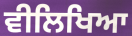
ਵੀਲਿਖਿਆ